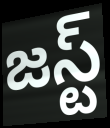
జస్ట్